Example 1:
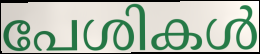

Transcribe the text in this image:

പേശികൾ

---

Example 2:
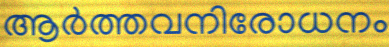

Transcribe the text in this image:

ആർത്തവനിരോധനം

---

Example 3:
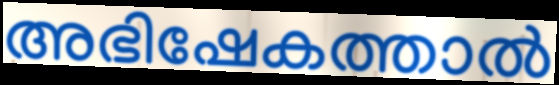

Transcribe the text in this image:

അഭിഷേകത്താൽ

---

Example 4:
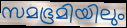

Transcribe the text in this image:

സമഭൂമിയിലും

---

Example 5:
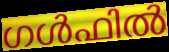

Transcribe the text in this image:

ഗൾഫിൽ